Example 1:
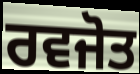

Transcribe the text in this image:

ਰਵਜੋਤ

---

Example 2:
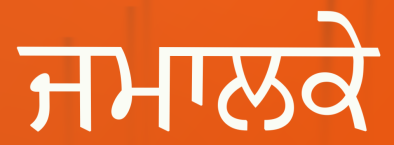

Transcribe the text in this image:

ਜਮਾਲਕੇ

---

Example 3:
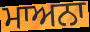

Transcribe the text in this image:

ਮਾਅਨਾ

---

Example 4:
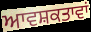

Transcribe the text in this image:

ਆਵਸ਼ਕਤਾਵਾਂ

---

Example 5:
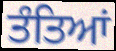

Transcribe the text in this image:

ਤੰਤਿਆਂ